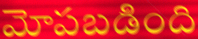
మోపబడింది